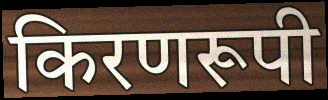
किरणरूपी